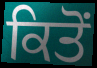
ਕਿਤੋਂ